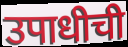
उपाधीची